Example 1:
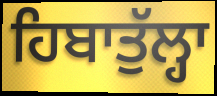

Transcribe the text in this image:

ਹਿਬਾਤੁੱਲ੍ਹਾ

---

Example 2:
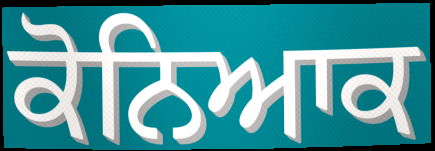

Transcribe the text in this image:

ਕੋਨਿਆਕ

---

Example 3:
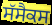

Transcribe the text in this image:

ਸੱਸੈਕਸ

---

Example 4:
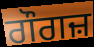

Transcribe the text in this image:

ਗੌਗਜ਼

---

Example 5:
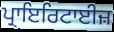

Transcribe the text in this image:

ਪ੍ਰਾਇਰਿਟਾਈਜ਼